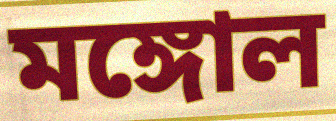
মঙ্গোল